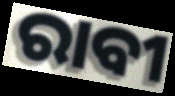
ରାବୀ